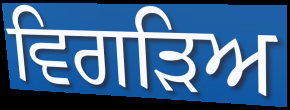
ਵਿਗੜਿਅ